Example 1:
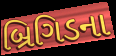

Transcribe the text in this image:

બ્રિગિડના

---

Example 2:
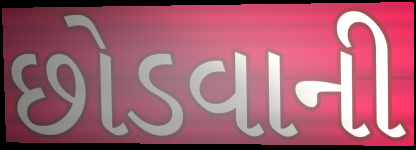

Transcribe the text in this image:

છોડવાની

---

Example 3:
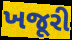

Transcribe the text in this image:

ખજૂરી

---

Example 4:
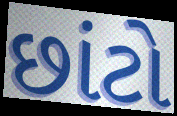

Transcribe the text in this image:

છાંટો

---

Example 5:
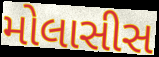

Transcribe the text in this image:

મોલાસીસ